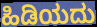
ಹಿಡಿಯದು